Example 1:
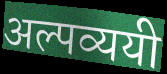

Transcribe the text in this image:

अल्पव्ययी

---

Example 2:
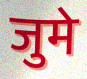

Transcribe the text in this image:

जुमे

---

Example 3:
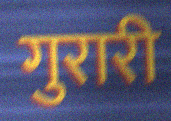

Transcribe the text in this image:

गुरारी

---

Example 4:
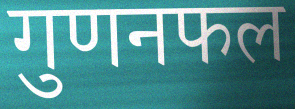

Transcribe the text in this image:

गुणनफल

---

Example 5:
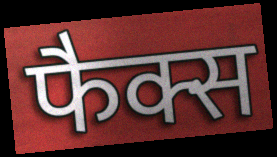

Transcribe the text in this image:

फैक्स